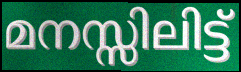
മനസ്സിലിട്ട്